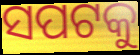
ସପଟକୁ